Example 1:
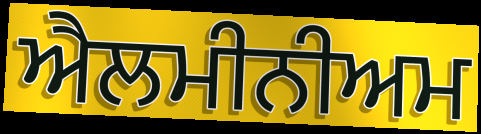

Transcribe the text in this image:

ਐਲਮੀਨੀਅਮ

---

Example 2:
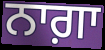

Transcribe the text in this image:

ਨਾਗ਼ਾ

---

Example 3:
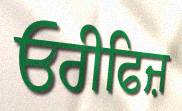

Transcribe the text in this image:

ਓਰੀਫਿਜ਼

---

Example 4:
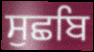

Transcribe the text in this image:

ਸੁਛਬਿ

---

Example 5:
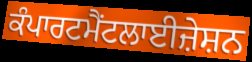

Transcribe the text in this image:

ਕੰਪਾਰਟਮੈਂਟਲਾਈਜ਼ੇਸ਼ਨ